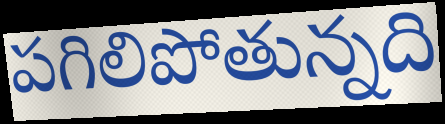
పగిలిపోతున్నది